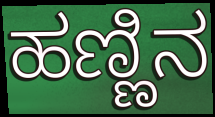
ಹಣ್ಣಿನ